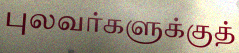
புலவர்களுக்குத்